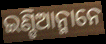
ଇଣ୍ଡିଆନ୍ମାନେ